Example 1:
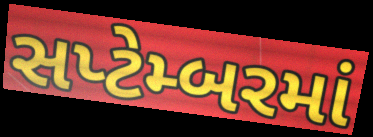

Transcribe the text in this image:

સપ્ટેમ્બરમાં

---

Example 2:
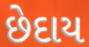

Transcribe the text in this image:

છેદાય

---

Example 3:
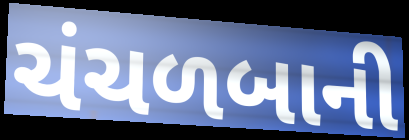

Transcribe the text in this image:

ચંચળબાની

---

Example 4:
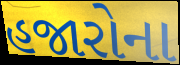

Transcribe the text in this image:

હજારોના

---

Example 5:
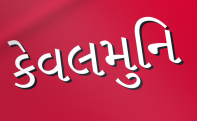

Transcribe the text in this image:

કેવલમુનિ